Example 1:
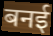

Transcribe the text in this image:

बनई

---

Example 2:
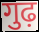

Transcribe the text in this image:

गुढ़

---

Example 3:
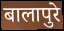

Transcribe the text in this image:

बालापुरे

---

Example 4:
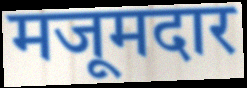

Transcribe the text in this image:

मजूमदार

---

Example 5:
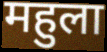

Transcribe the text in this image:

महुला